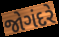
જોગંદરે